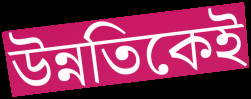
উন্নতিকেই